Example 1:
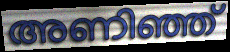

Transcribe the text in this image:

അണിഞ്ഞ്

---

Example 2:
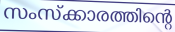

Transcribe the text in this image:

സംസ്‌ക്കാരത്തിന്റെ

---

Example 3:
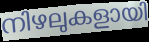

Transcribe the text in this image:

നിഴലുകളായി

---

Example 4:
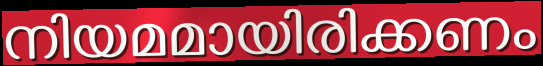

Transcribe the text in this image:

നിയമമായിരിക്കണം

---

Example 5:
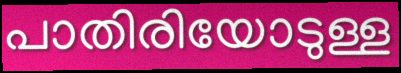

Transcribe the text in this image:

പാതിരിയോടുള്ള